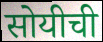
सोयीची